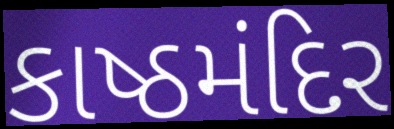
કાષ્ઠમંદિર